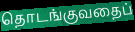
தொடங்குவதைப்